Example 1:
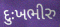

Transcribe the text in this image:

દુઃખભીરુ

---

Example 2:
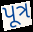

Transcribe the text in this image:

પૂત્ર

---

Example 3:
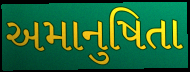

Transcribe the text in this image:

અમાનુષિતા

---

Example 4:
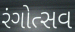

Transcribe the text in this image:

રંગોત્સવ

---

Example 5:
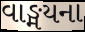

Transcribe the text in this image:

વાઙ્મયના